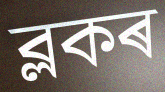
ব্লকৰ